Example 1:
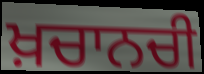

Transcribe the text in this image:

ਖ਼ਚਾਨਚੀ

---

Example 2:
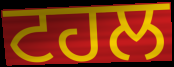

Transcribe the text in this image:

ਟਹਲ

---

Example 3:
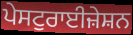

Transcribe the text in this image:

ਪੇਸਟੁਰਾਈਜ਼ੇਸ਼ਨ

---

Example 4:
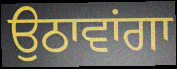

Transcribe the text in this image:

ਉਠਾਵਾਂਗਾ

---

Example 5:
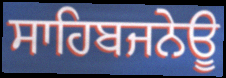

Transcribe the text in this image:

ਸਾਹਿਬਜਨੇਊ